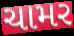
ચામર